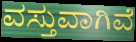
ವಸ್ತುವಾಗಿವೆ